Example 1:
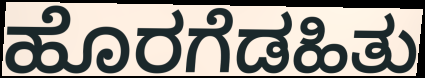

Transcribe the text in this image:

ಹೊರಗೆಡಹಿತು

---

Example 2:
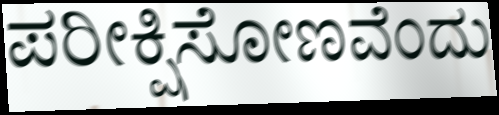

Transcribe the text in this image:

ಪರೀಕ್ಷಿಸೋಣವೆಂದು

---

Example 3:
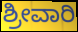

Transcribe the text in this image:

ಶ್ರೀವಾರಿ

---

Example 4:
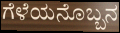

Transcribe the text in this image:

ಗೆಳೆಯನೊಬ್ಬನ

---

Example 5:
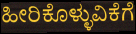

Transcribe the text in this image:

ಹೀರಿಕೊಳ್ಳುವಿಕೆಗೆ